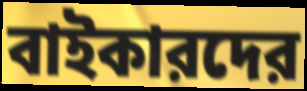
বাইকারদের